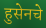
हुसेनचे